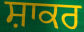
ਸ਼ਾਕਰ